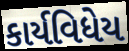
કાર્યવિધેય